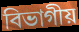
বিভাগীয়